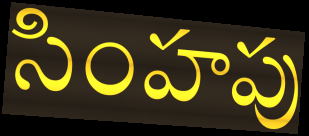
సింహపు